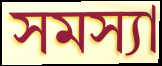
সমস্যা